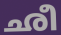
ഛീ